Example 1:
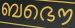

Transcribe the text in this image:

ബഭൌ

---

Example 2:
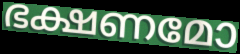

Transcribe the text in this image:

ഭക്ഷണമോ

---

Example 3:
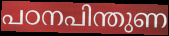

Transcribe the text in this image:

പഠനപിന്തുണ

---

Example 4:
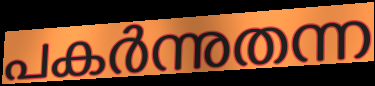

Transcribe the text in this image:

പകർന്നുതന്ന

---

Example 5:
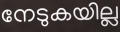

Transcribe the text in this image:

നേടുകയില്ല